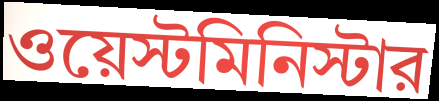
ওয়েস্টমিনিস্টার